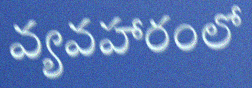
వ్యవహారంలో